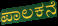
ಪಾಲಕನೆ